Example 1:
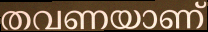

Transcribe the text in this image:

തവണയാണ്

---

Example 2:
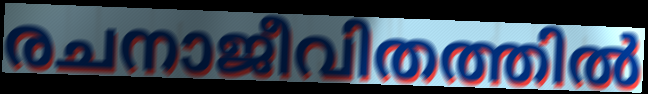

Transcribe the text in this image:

രചനാജീവിതത്തിൽ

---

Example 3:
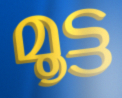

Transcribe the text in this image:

മൂട്ട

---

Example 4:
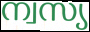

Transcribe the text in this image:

ന്വസ്യ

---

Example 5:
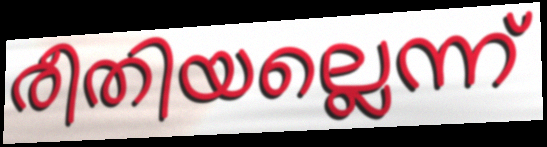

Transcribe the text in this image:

രീതിയല്ലെന്ന്